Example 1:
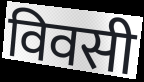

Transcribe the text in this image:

विवसी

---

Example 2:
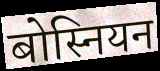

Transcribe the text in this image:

बोस्नियन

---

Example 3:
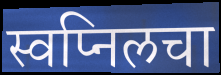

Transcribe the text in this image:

स्वप्निलचा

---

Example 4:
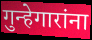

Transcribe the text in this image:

गुन्हेगारांना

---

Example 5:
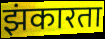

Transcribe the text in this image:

झंकारता